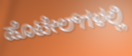
ಹೊಟೇಲ್‌ಗಳಲ್ಲಿ